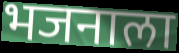
भजनाला